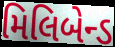
મિલિબેન્ડ